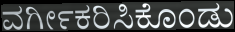
ವರ್ಗೀಕರಿಸಿಕೊಂಡು